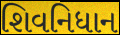
શિવનિધાન